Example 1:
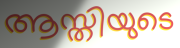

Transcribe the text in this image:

ആസ്തിയുടെ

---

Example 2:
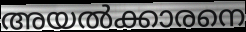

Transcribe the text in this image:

അയൽക്കാരനെ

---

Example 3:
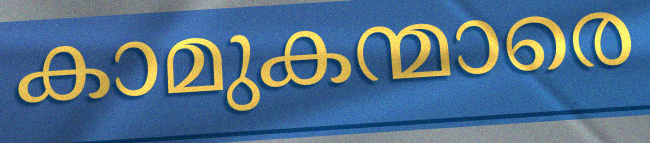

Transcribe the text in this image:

കാമുകന്മാരെ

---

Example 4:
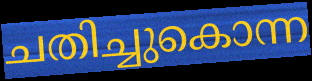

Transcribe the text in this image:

ചതിച്ചുകൊന്ന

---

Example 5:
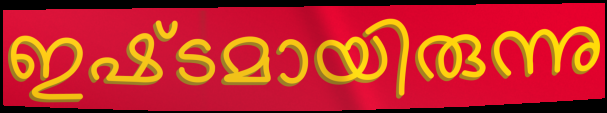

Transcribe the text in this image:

ഇഷ്‌ടമായിരുന്നു